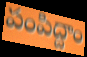
పంపిద్దాం